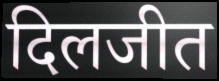
दिलजीत